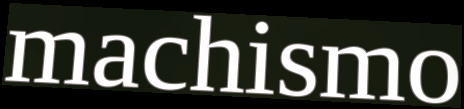
machismo